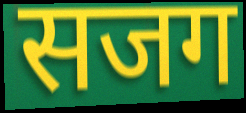
सजग